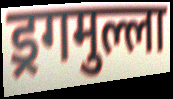
ड्रगमुल्ला